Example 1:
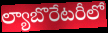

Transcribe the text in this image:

ల్యాబొరేటరీలో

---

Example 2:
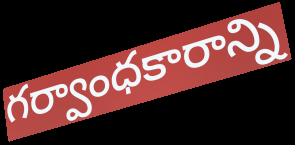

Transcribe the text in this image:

గర్వాంధకారాన్ని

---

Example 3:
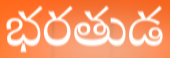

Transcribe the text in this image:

భరతుడ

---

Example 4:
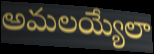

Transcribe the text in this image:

అమలయ్యేలా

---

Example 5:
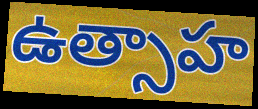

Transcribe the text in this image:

ఉత్సాహ